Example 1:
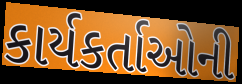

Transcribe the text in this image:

કાર્યકર્તાઓની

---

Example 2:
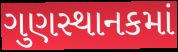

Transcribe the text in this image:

ગુણસ્થાનકમાં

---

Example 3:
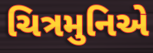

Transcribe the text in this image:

ચિત્રમુનિએ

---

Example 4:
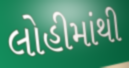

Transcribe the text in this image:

લોહીમાંથી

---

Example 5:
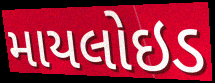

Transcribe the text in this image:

માયલોઇડ